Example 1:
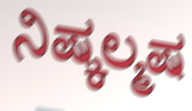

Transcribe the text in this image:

ನಿಷ್ಕಲ್ಮಷ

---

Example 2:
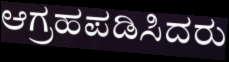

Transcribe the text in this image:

ಆಗ್ರಹಪಡಿಸಿದರು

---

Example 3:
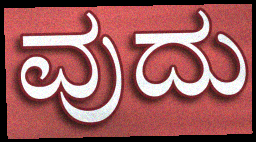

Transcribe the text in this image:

ವುದು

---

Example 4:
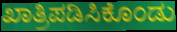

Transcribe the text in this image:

ಖಾತ್ರಿಪಡಿಸಿಕೊಂಡು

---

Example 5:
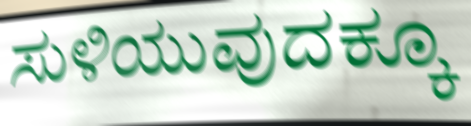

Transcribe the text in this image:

ಸುಳಿಯುವುದಕ್ಕೂ